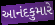
આનંદકુમારે